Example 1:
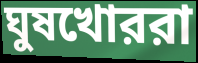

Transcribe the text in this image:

ঘুষখোররা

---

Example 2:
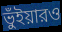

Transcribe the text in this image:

ভুঁইয়ারও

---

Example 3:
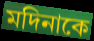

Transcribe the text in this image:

মদিনাকে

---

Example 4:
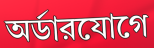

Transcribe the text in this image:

অর্ডারযোগে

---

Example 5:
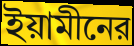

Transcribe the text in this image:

ইয়ামীনের